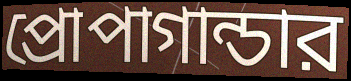
প্রোপাগান্ডার